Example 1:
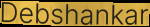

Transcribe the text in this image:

Debshankar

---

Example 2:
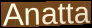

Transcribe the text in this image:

Anatta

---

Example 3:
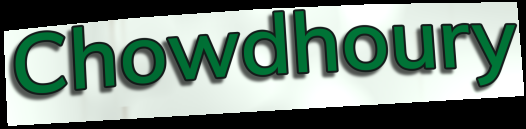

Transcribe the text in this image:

Chowdhoury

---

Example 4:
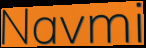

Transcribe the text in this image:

Navmi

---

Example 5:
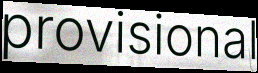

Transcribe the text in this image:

provisional